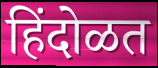
हिंदोळत